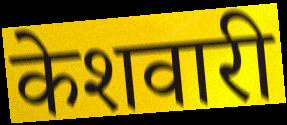
केशवारी